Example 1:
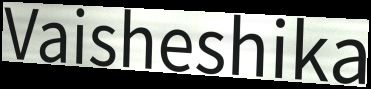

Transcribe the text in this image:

Vaisheshika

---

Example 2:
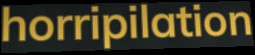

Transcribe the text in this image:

horripilation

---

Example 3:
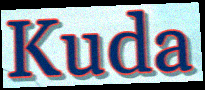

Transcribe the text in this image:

Kuda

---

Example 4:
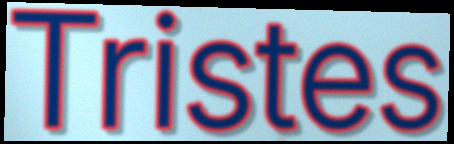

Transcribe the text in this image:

Tristes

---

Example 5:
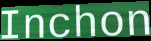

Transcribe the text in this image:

Inchon